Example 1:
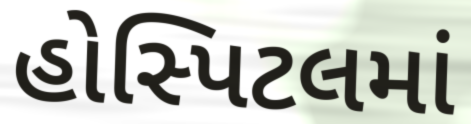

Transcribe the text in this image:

હોસ્પિટલમાં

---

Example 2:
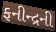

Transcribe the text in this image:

ફનીન્દ્રની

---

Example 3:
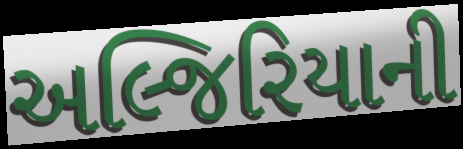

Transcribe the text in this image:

અલ્જિરિયાની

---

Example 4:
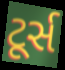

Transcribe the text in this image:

ટૂર્સ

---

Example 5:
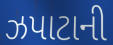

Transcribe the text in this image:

ઝપાટાની